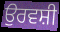
ਉਰਵਸ਼ੀ